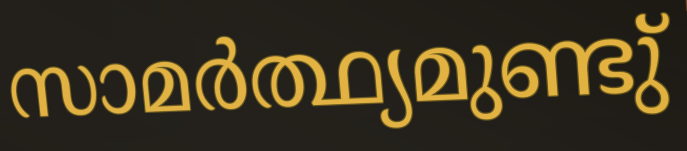
സാമർത്ഥ്യമുണ്ടു്